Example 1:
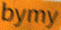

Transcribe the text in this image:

bymy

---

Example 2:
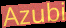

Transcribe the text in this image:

Azubi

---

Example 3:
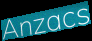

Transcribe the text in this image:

Anzacs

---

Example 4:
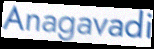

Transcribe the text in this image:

Anagavadi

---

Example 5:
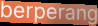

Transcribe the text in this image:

berperang